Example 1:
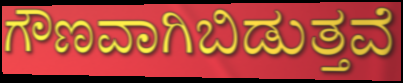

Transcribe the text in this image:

ಗೌಣವಾಗಿಬಿಡುತ್ತವೆ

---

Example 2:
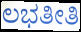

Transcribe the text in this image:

ಲಭತೀತಿ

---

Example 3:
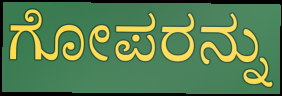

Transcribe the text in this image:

ಗೋಪರನ್ನು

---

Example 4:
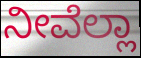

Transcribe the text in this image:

ನೀವೆಲ್ಲಾ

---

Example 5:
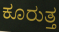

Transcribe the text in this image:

ಕೂರುತ್ತ